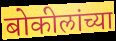
बोकीलांच्या